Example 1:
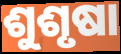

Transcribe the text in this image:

ଶୁଶୃଷା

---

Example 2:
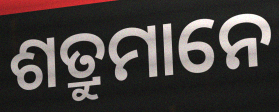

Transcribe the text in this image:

ଶତ୍ରୁମାନେ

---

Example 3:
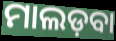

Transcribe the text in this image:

ମାଲଡ଼ବା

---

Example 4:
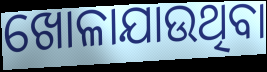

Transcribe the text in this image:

ଖୋଳାଯାଉଥିବା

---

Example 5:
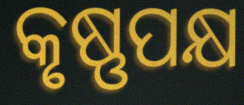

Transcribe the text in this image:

କୃଷ୍ଣପକ୍ଷ